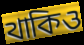
থাকিও